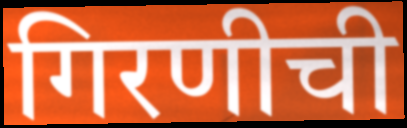
गिरणीची